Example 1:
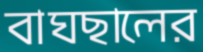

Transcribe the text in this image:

বাঘছালের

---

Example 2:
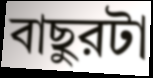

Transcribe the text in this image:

বাছুরটা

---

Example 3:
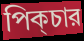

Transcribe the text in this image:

পিক্চার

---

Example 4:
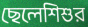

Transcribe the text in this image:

ছেলেশিশুর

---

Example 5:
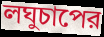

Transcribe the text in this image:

লঘুচাপের